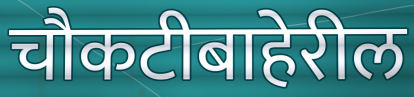
चौकटीबाहेरील